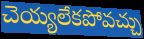
చెయ్యలేకపోవచ్చు